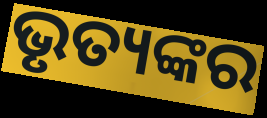
ଭୃତ୍ୟଙ୍କର